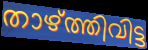
താഴ്ത്തിവിട്ട